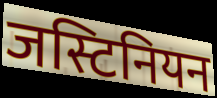
जस्टिनियन